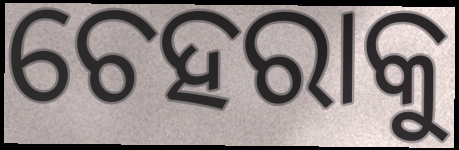
ଚେହରାକୁ